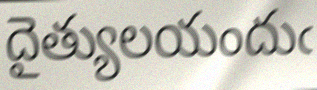
దైత్యులయందుఁ